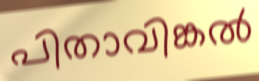
പിതാവിങ്കൽ